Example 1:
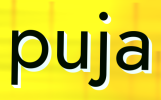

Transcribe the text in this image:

puja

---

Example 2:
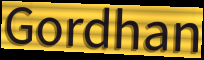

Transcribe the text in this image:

Gordhan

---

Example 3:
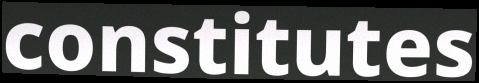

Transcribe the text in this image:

constitutes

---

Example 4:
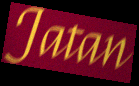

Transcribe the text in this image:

Jatan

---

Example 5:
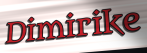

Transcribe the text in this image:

Dimirike